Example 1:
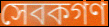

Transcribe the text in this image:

সেবকগণ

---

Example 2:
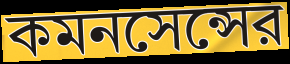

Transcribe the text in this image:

কমনসেন্সের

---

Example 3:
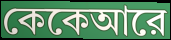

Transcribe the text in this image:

কেকেআরে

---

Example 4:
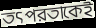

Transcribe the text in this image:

তৎপরতাকেই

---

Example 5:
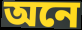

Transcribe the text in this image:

অনে